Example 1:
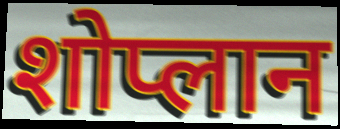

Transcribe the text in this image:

शोप्लान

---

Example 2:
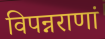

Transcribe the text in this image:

विपन्नराणां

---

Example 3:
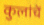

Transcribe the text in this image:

कुलांचें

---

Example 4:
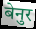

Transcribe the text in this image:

बेनुर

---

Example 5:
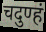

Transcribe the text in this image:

चदुण्हं